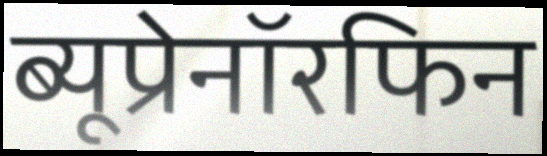
ब्यूप्रेनॉरफिन